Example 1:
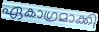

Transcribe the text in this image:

ഏകാഗ്രമാക്കി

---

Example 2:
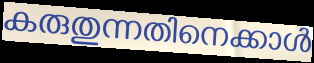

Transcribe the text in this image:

കരുതുന്നതിനെക്കാൾ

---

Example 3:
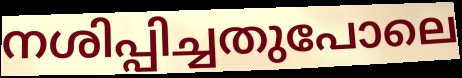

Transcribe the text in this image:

നശിപ്പിച്ചതുപോലെ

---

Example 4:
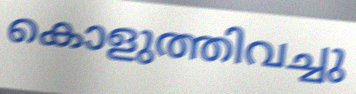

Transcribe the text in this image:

കൊളുത്തിവച്ചു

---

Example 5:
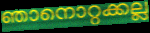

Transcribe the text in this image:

ഞാനൊറ്റക്കല്ല